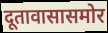
दूतावासासमोर